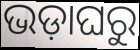
ଭଡ଼ାଘରୁ